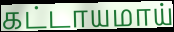
கட்டாயமாய்